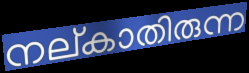
നല്കാതിരുന്ന